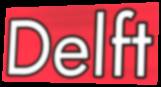
Delft